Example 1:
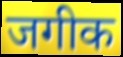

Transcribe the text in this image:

जगीक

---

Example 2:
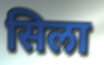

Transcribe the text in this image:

सिला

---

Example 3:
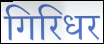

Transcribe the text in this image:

गिरिधर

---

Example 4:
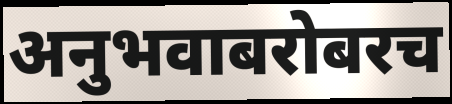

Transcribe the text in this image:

अनुभवाबरोबरच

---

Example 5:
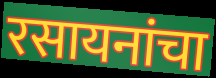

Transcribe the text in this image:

रसायनांचा